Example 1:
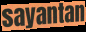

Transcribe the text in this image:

sayantan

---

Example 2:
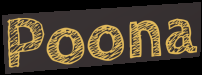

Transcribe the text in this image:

Poona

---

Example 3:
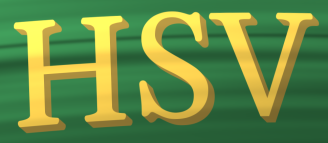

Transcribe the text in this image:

HSV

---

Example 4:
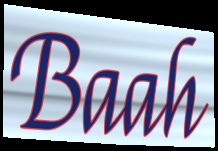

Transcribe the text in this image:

Baah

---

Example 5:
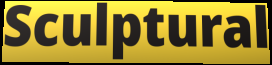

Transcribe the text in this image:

Sculptural